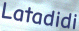
Latadidi